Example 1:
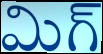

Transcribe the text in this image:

మిగ్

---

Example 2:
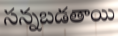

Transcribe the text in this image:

సన్నబడతాయి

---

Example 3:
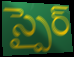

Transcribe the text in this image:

స్పైర్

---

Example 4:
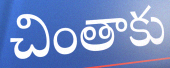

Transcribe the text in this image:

చింతాకు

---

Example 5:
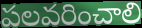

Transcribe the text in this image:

పలవరించాలి